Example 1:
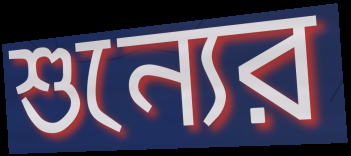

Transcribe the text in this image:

শুন্যের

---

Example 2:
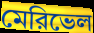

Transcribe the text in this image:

মেরিভেল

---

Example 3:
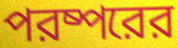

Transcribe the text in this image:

পরষ্পরের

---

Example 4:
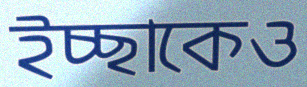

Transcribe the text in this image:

ইচ্ছাকেও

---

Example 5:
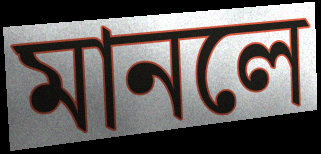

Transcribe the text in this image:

মানলে